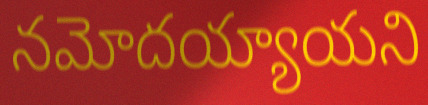
నమోదయ్యాయని